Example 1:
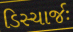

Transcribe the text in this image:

ડિસ્ચાર્જઃ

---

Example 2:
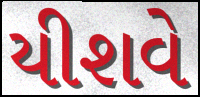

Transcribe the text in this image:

યીશવે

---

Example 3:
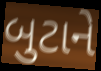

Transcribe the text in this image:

બુટાને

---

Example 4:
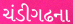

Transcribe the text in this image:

ચંડીગઢના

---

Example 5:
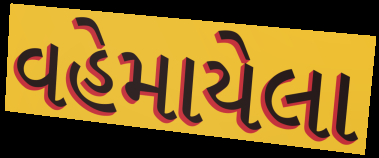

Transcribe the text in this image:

વહેમાયેલા